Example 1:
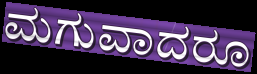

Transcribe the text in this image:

ಮಗುವಾದರೂ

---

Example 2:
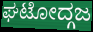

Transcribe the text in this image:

ಘಟೋದ್ಗಜ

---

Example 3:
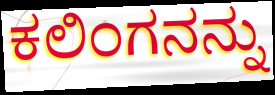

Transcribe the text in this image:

ಕಲಿಂಗನನ್ನು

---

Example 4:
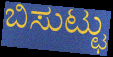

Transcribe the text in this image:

ಬಿಸುಟ್ಟು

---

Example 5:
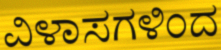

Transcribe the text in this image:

ವಿಳಾಸಗಳಿಂದ